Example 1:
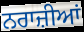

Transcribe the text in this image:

ਨਰਾਜ਼ੀਆਂ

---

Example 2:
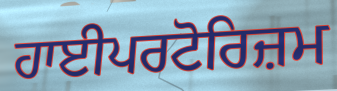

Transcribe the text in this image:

ਹਾਈਪਰਟੋਰਿਜ਼ਮ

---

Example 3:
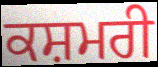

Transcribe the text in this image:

ਕਸ਼ਮਰੀ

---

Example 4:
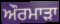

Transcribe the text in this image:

ਔਰਮਾੜਾ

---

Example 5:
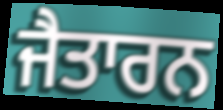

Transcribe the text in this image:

ਜੈਤਾਰਨ